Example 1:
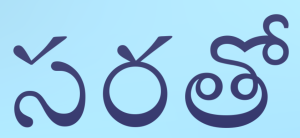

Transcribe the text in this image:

సరతో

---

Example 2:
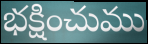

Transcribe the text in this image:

భక్షించుము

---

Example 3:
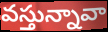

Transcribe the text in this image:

వస్తున్నావా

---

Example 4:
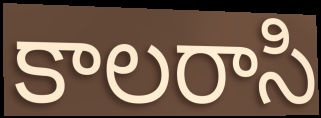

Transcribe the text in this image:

కాలరాసి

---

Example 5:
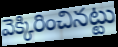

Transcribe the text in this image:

వెక్కిరించినట్టు